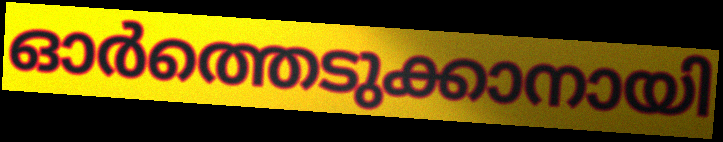
ഓർത്തെടുക്കാനായി